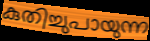
കുതിച്ചുപായുന്ന